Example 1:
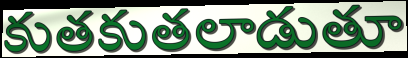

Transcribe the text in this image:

కుతకుతలాడుతూ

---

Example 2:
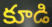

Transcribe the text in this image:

కూడి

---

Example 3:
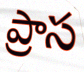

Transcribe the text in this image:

ప్రాస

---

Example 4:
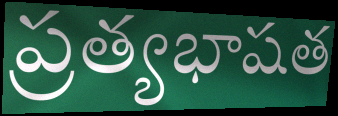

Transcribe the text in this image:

ప్రత్యభాషత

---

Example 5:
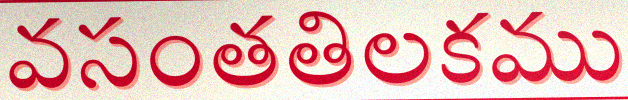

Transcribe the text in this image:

వసంతతిలకము